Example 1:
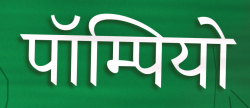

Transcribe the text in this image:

पॉम्पियो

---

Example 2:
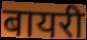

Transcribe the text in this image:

बायरी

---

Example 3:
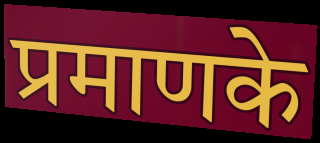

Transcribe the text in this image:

प्रमाणके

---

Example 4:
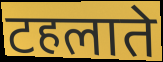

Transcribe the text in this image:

टहलाते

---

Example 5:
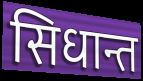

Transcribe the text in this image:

सिधान्त